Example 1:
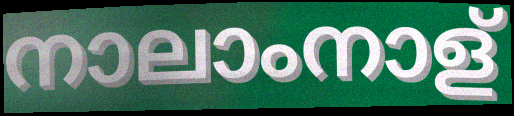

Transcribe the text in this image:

നാലാംനാള്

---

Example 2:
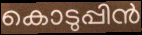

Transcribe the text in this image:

കൊടുപ്പിൻ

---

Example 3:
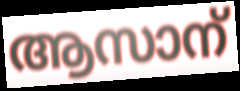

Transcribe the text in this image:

ആസാന്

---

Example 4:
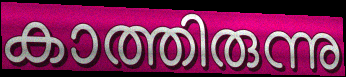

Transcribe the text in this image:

കാത്തിരുന്നു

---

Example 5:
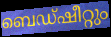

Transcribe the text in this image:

ബെഡ്ഷീറ്റും